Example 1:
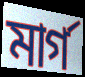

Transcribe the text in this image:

মাৰ্গ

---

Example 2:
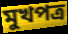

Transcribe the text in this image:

মুখপত্ৰ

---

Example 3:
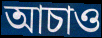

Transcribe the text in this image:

আচাও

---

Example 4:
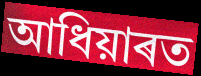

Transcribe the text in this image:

আধিয়াৰত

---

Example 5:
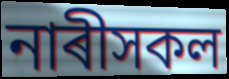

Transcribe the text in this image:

নাৰীসকল